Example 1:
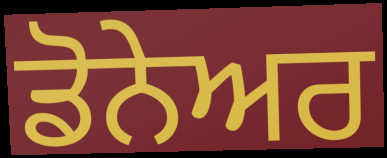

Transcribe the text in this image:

ਡੋਨੇਅਰ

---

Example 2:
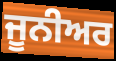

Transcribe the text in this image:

ਜੂਨੀਅਰ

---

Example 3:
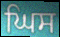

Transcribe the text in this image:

ਘਿਸ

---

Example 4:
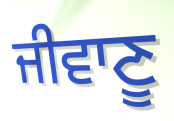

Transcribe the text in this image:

ਜੀਵਾਣੂ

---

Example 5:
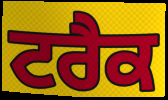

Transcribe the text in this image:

ਟਰੈਕ